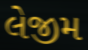
લેજીમ